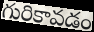
గురికావడం